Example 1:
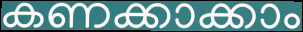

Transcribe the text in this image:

കണക്കാക്കാം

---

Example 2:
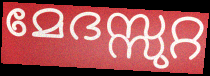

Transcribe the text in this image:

മേദസ്സുറ്റ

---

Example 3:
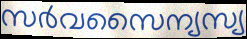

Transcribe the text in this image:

സർവസൈന്യസ്യ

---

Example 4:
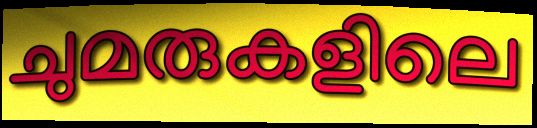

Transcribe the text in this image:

ചുമരുകളിലെ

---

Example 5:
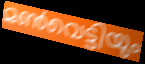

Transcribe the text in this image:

മൺവെട്ടിയും